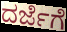
ದರ್ಜೆಗೆ